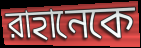
রাহানেকে